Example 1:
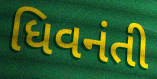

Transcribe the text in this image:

ધિવનંતી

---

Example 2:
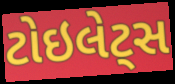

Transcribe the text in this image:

ટોઇલેટ્સ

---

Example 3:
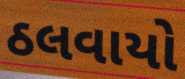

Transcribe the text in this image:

ઠલવાયો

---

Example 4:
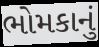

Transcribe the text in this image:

ભોમકાનું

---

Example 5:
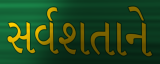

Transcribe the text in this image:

સર્વશતાને